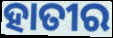
ହାତୀର